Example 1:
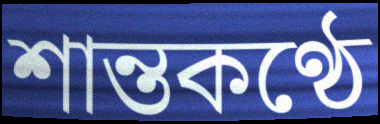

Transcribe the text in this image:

শান্তকণ্ঠে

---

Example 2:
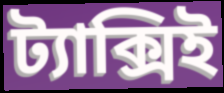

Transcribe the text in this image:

ট্যাক্সিই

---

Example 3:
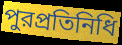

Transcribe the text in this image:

পুরপ্রতিনিধি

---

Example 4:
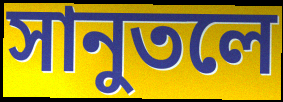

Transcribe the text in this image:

সানুতলে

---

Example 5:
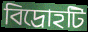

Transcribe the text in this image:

বিদ্রোহটি